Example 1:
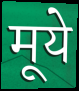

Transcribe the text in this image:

मूये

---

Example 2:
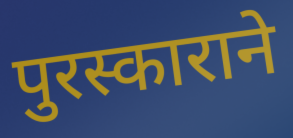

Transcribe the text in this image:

पुरस्काराने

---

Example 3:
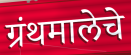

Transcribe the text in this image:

ग्रंथमालेचे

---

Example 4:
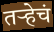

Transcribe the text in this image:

तर्‍हेचं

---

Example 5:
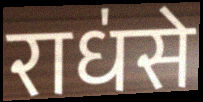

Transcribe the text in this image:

राध॑से